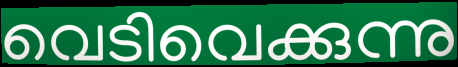
വെടിവെക്കുന്നു